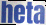
heta